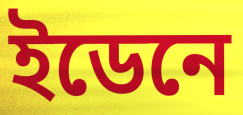
ইডেনে